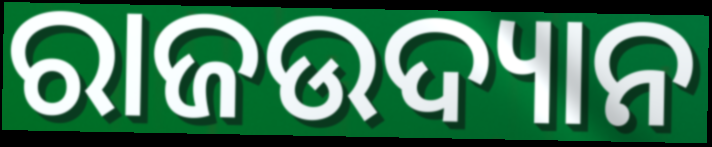
ରାଜଉଦ୍ୟାନ